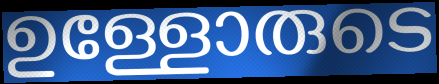
ഉള്ളോരുടെ